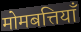
मोमबत्तियाँ